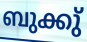
ബുക്കു്